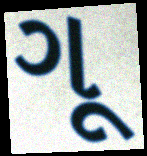
ગૂ